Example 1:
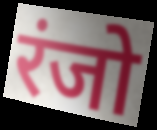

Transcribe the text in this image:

रंजो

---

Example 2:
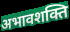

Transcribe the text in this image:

अभावशक्ति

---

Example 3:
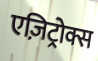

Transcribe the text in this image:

एज़िट्रोक्स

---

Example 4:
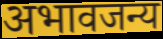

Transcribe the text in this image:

अभावजन्य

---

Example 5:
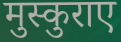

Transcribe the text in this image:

मुस्कुराए